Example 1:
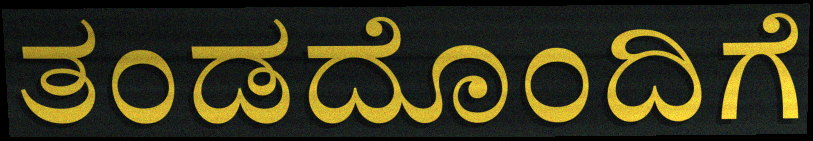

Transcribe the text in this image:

ತಂಡದೊಂದಿಗೆ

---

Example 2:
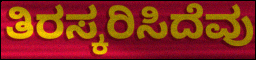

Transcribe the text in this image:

ತಿರಸ್ಕರಿಸಿದೆವು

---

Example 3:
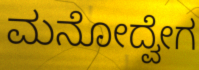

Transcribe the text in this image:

ಮನೋದ್ವೇಗ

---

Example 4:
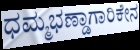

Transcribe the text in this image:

ಧಮ್ಮಭಣ್ಡಾಗಾರಿಕೇನ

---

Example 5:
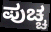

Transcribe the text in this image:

ಪುಚ್ಚ